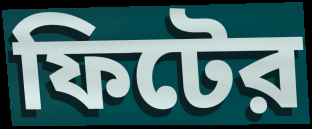
ফিটের